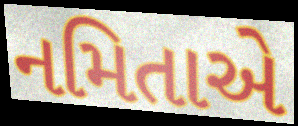
નમિતાએ